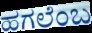
ಹಗಲೆಂಬ